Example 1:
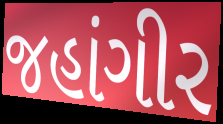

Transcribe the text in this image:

જહાંગીર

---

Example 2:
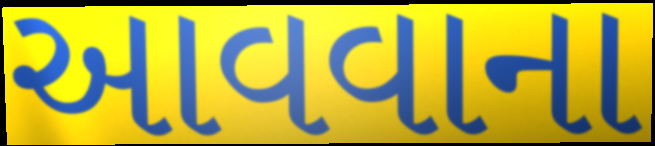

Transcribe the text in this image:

આવવાના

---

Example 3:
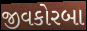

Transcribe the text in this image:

જીવકોરબા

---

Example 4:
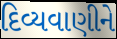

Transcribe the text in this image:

દિવ્યવાણીને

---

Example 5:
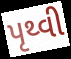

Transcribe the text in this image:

પૃથ્વી